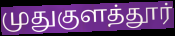
முதுகுளத்தூர்